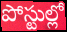
పోస్టుల్లో